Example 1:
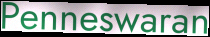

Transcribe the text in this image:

Penneswaran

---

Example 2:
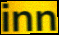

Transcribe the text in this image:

inn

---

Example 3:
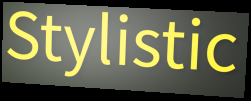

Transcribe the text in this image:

Stylistic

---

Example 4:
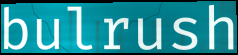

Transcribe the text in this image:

bulrush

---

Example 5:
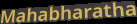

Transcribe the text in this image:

Mahabharatha